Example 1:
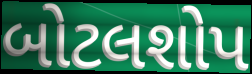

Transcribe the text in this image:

બોટલશોપ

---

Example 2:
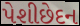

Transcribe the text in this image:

પેશીછેદન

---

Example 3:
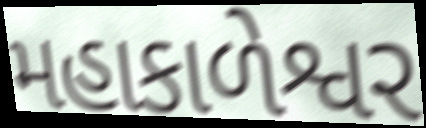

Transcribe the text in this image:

મહાકાળેશ્વર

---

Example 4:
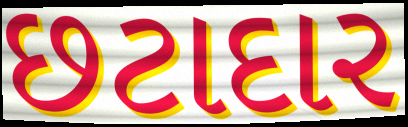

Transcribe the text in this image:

છટાદાર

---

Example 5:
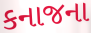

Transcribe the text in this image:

કનાજના